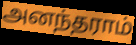
அனந்தராம்